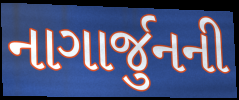
નાગાર્જુનની